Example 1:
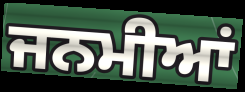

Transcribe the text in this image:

ਜਨਮੀਆਂ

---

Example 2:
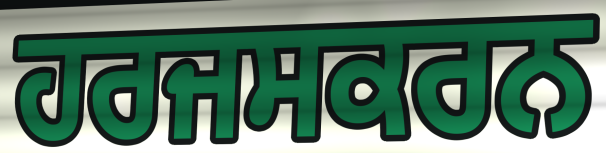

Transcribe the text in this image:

ਹਰਜਸਕਰਨ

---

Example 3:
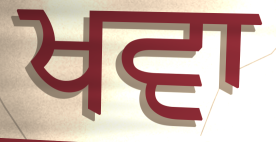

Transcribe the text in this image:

ਖਵਾ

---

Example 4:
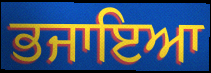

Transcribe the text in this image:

ਭਜਾਇਆ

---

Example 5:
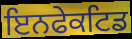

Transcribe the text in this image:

ਇਨਫੇਕਟਿਡ